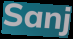
Sanj